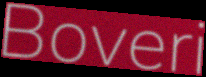
Boveri